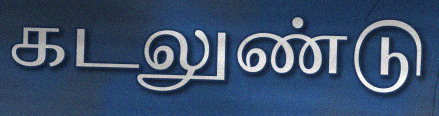
கடலுண்டு